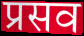
प्रसव